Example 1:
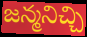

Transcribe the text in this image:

జన్మనిచ్చి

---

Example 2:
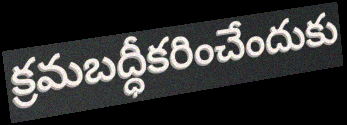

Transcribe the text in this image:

క్రమబద్ధీకరించేందుకు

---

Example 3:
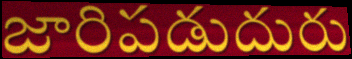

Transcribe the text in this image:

జారిపడుదురు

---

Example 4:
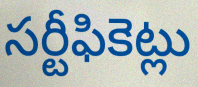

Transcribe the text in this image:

సర్టీఫికెట్లు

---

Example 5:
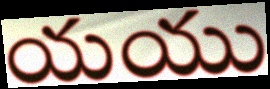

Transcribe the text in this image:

యయు